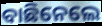
ବାଛିନେଲେ